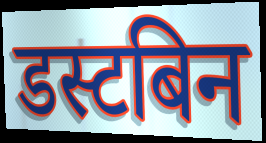
डस्टबिन